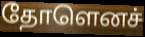
தோளெனச்